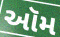
ઑમ